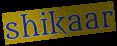
shikaar